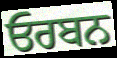
ਓਰਬਨ